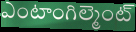
ఎంటాంగిల్మెంట్